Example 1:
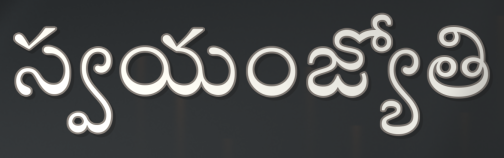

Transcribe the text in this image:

స్వయంజ్యోతి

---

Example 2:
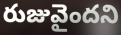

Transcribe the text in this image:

రుజువైందని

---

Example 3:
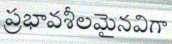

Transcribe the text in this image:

ప్రభావశీలమైనవిగా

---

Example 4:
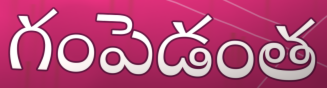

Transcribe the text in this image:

గంపెడంత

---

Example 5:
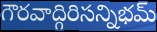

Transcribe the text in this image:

గౌరవాద్గిరిసన్నిభమ్